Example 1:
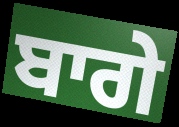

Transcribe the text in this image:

ਬਾਗੇ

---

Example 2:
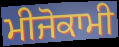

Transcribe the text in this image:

ਮੀਜੋਕਾਮੀ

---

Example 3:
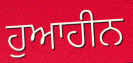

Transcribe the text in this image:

ਹੁਆਹੀਨ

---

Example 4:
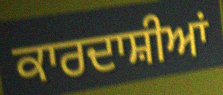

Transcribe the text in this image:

ਕਾਰਦਾਸ਼ੀਆਂ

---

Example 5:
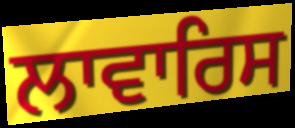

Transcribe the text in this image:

ਲਾਵਾਰਿਸ